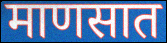
माणसात